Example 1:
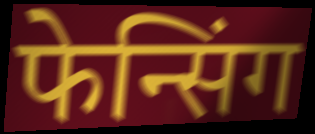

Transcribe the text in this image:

फेन्सिंग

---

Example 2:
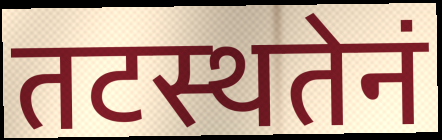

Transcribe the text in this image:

तटस्थतेनं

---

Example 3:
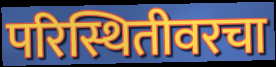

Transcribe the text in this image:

परिस्थितीवरचा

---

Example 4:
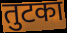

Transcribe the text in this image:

तुटका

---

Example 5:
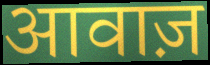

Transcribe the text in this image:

आवाज़